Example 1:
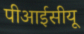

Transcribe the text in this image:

पीआईसीयू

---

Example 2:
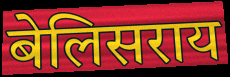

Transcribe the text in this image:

बेलिसराय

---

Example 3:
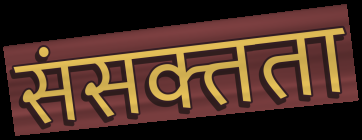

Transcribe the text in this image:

संसक्तता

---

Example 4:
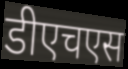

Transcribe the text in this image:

डीएचएस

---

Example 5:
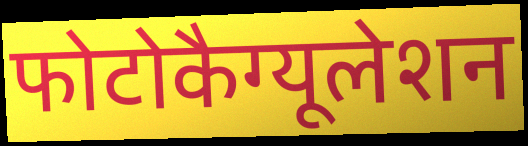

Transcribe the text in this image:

फोटोकैग्यूलेशन